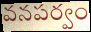
వనపర్వం